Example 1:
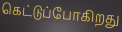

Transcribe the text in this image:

கெட்டுப்போகிறது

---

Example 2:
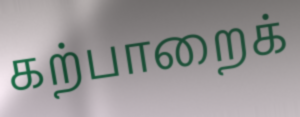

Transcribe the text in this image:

கற்பாறைக்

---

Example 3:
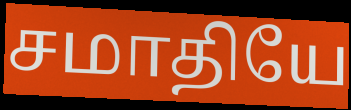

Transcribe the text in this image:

சமாதியே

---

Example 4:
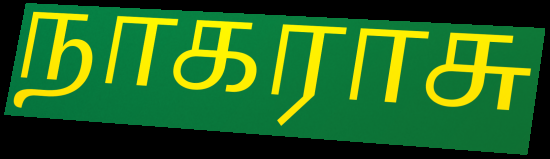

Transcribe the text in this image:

நாகராசு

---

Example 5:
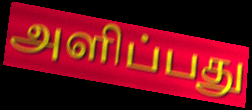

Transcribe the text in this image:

அளிப்பது